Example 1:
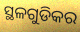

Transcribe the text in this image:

ସ୍ଥଳଗୁଡିକର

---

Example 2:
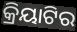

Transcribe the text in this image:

କ୍ରିୟାଟିର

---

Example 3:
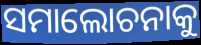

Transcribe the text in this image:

ସମାଲୋଚନାକୁ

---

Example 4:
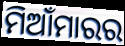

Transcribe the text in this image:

ମିଆଁମାରର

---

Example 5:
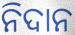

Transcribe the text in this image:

ନିଦାନ